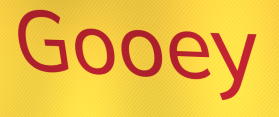
Gooey